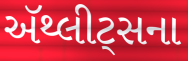
ઍથ્લીટ્સના